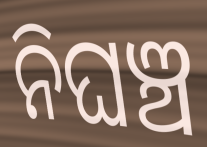
ନିଘଞ୍ଚ